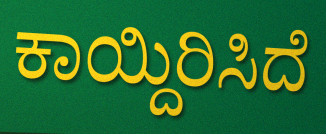
ಕಾಯ್ದಿರಿಸಿದೆ